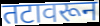
तटावरून